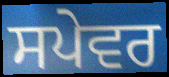
ਸਪੇਵਰ